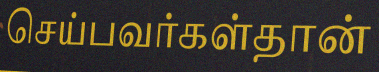
செய்பவர்கள்தான்